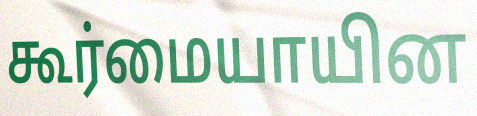
கூர்மையாயின